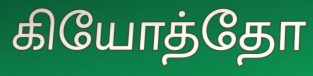
கியோத்தோ